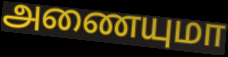
அணையுமா